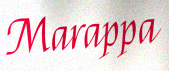
Marappa